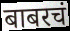
बाबरचं